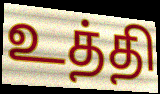
உத்தி